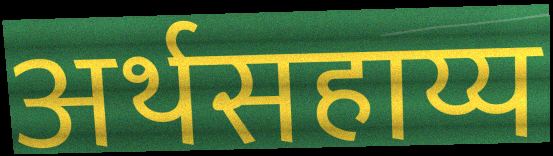
अर्थसहाय्य